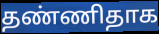
தண்ணிதாக